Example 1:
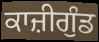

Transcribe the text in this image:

ਕਾਜ਼ੀਗੁੰਡ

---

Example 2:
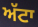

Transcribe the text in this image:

ਅੱਟਾ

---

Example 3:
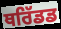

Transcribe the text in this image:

ਥਰਿੱਡਡ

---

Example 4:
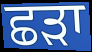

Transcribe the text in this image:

ਛਡ਼ਾ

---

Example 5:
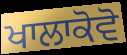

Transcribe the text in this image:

ਖਾਲਾਕੋਵੋ